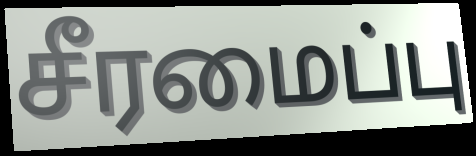
சீரமைப்பு